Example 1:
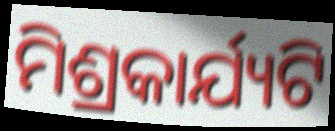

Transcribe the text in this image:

ମିଶ୍ରକାର୍ଯ୍ୟଟି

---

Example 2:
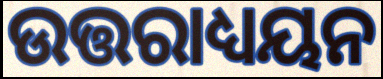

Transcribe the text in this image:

ଉତ୍ତରାଧ୍ୟୟନ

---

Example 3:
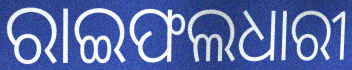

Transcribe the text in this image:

ରାଇଫଲଧାରୀ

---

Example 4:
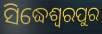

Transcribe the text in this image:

ସିଦ୍ଧେଶ୍ଵରପୁର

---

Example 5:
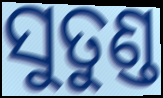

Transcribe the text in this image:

ସୁତୁଣ୍ଡ